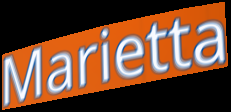
Marietta